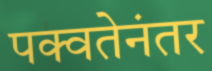
पक्वतेनंतर